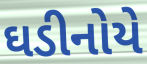
ઘડીનોયે